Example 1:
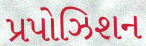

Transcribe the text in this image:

પ્રપોઝિશન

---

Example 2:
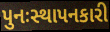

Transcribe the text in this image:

પુનઃસ્થાપનકારી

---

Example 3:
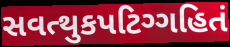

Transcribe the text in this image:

સવત્થુકપટિગ્ગહિતં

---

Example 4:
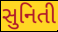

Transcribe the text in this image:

સુનિતી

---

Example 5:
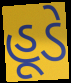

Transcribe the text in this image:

હૂડે